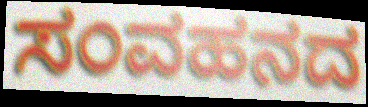
ಸಂವಹನದ